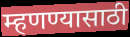
म्हणण्यासाठी